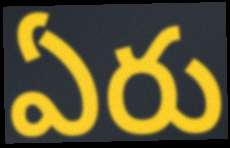
ఏరు